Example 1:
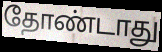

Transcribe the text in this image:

தோண்டாது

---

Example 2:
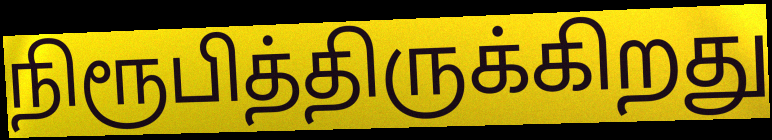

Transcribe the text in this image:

நிரூபித்திருக்கிறது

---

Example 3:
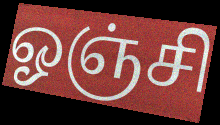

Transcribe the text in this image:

ஓஞ்சி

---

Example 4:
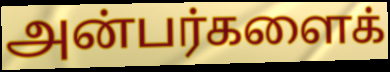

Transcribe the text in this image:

அன்பர்களைக்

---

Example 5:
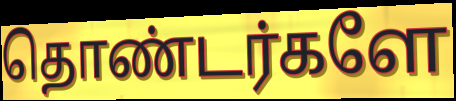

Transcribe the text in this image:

தொண்டர்களே